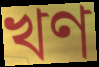
খণ